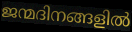
ജന്മദിനങ്ങളിൽ